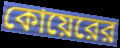
কোয়েরের